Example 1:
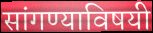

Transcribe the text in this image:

सांगण्याविषयी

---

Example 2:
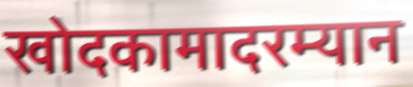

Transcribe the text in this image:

खोदकामादरम्यान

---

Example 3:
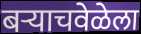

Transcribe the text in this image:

बर्‍याचवेळेला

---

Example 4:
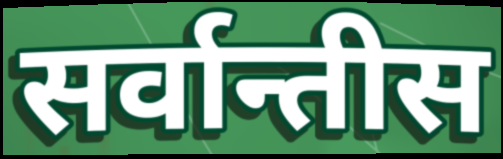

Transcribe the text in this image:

सर्वान्तीस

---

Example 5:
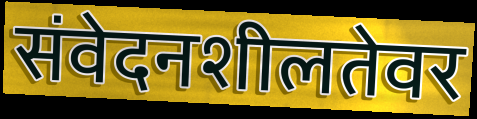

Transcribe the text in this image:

संवेदनशीलतेवर